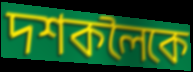
দশকলৈকে